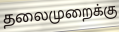
தலைமுறைக்கு